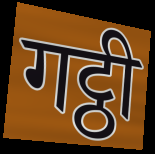
गट्ठी